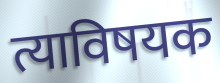
त्याविषयक